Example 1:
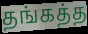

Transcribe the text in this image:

தங்கத்த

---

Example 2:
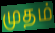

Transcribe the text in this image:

முதம்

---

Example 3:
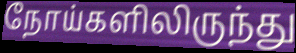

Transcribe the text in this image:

நோய்களிலிருந்து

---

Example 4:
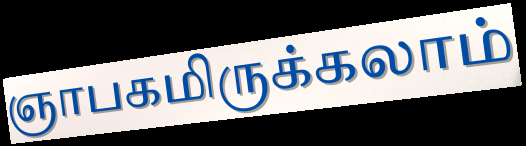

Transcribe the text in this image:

ஞாபகமிருக்கலாம்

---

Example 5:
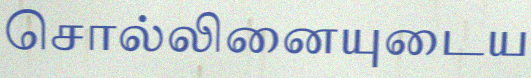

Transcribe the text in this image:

சொல்லினையுடைய